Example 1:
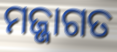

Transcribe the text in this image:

ମଜ୍ଜାଗତ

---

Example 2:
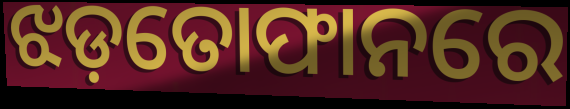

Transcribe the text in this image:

ଝଡ଼ତୋଫାନରେ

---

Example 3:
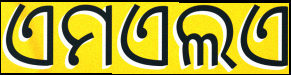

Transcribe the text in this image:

ଏମଏଲଏ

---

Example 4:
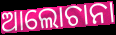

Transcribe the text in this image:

ଆଲୋଚାନା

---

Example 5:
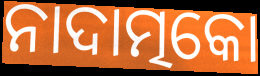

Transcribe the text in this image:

ନାଦାତ୍ମକୋ